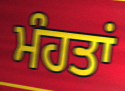
ਮੰਹਤਾਂ